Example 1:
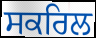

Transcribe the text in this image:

ਸਕਰਿਲ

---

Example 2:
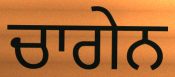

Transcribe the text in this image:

ਚਾਗੇਨ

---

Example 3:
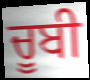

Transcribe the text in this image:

ਚੂਬੀ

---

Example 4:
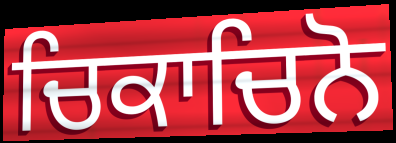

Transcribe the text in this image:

ਚਿਕਾਚਿਨੋ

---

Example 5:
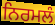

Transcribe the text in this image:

ਨਿਰਮਲੰ